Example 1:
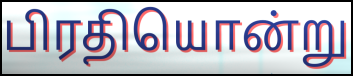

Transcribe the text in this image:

பிரதியொன்று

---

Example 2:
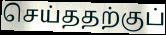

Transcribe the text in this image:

செய்ததற்குப்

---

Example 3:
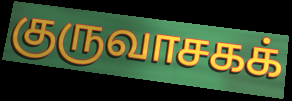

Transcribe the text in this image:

குருவாசகக்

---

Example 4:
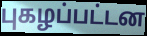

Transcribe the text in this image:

புகழப்பட்டன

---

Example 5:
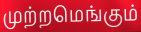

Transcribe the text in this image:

முற்றமெங்கும்